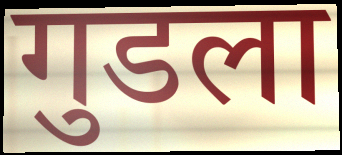
गुडला